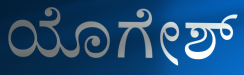
ಯೊಗೇಶ್